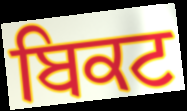
ਬਿਕਟ